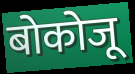
बोकोजू